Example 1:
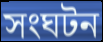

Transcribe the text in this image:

সংঘটন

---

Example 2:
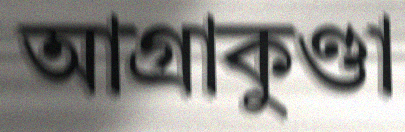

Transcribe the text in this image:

আগ্রাকুণ্ডা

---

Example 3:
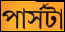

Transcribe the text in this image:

পার্সটা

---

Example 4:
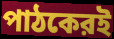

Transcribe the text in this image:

পাঠকেরই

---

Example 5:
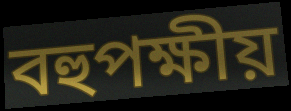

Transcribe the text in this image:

বহুপক্ষীয়